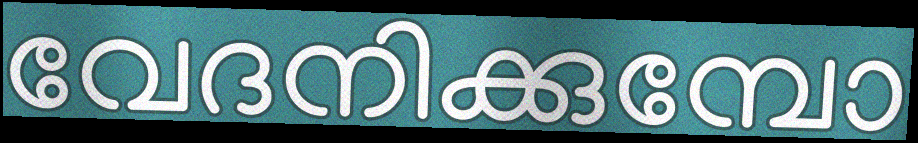
വേദനിക്കുമ്പോ